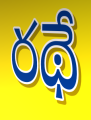
రథే